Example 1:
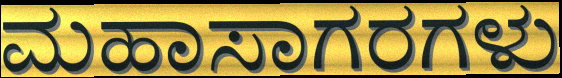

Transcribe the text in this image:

ಮಹಾಸಾಗರಗಳು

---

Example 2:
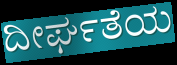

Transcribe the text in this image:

ದೀರ್ಘತೆಯ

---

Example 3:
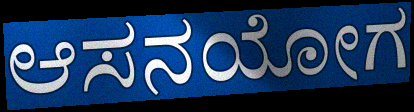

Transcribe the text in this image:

ಆಸನಯೋಗ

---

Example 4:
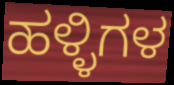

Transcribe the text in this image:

ಹಳ್ಳಿಗಳ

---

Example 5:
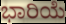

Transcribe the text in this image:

ಭಾರಿಯೆ